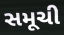
સમૂચી